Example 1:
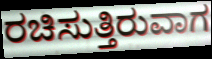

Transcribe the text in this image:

ರಚಿಸುತ್ತಿರುವಾಗ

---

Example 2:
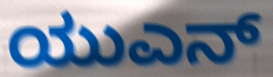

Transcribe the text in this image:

ಯುಎನ್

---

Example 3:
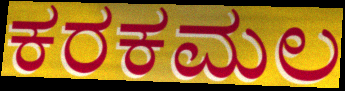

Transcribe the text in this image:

ಕರಕಮಲ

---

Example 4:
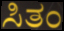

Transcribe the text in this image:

ಸಿತಂ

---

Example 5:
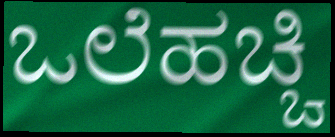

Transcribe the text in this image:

ಒಲೆಹಚ್ಚಿ